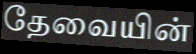
தேவையின்